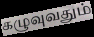
கழுவுவதும்